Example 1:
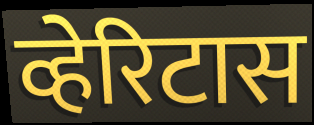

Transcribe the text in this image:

व्हेरिटास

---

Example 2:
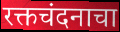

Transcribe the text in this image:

रक्तचंदनाचा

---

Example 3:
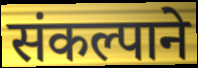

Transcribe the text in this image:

संकल्पाने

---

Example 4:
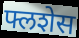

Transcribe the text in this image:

फ्लशेस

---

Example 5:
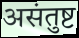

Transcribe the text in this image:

असंतुष्ट